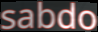
sabdo